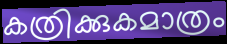
കത്രിക്കുകമാത്രം